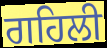
ਗਹਿਲੀ